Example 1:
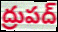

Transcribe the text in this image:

ద్రుపద్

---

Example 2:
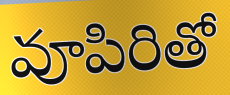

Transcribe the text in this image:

వూపిరితో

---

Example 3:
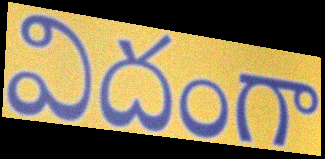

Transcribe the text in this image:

విదంగా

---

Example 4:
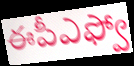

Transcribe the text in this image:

ఈపీఎఫ్వో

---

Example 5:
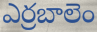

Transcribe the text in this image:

ఎర్రబాలెం